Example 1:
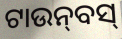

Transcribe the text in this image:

ଟାଉନ୍‍ବସ୍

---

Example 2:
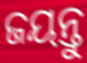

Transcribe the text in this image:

ଜୟନ୍ତୁ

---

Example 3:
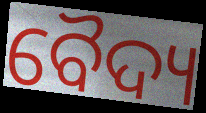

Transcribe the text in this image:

ବୈଦ୍ୟ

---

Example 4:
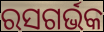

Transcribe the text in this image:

ରସଗର୍ଭକ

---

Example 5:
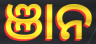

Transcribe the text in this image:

ଞାନ